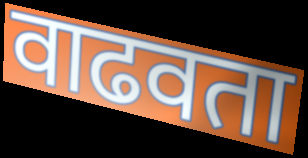
वाढवता